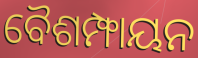
ବୈଶମ୍ଫାୟନ